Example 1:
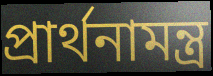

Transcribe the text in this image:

প্রার্থনামন্ত্র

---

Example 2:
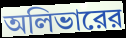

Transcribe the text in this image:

অলিভারের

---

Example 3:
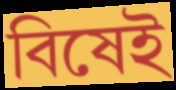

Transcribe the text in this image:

বিষেই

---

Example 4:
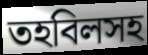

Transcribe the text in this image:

তহবিলসহ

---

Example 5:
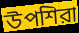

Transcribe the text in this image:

উপশিরা